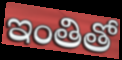
ఇంతితో